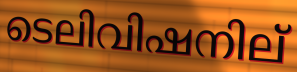
ടെലിവിഷനില്